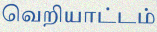
வெறியாட்டம்